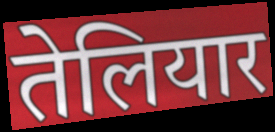
तेलियार